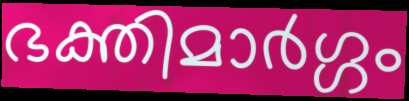
ഭക്തിമാർഗ്ഗം